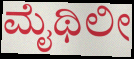
ಮೈಥಿಲೀ